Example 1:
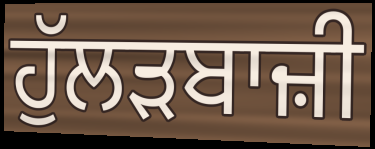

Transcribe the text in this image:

ਹੁੱਲੜਬਾਜ਼ੀ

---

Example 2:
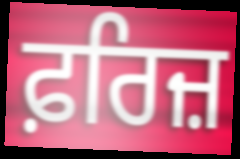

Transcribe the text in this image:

ਫ਼ਰਿਜ਼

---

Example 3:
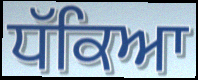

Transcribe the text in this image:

ਧੱਕਿਆ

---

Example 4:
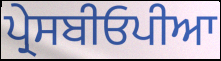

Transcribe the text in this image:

ਪ੍ਰੇਸਬੀਓਪੀਆ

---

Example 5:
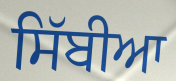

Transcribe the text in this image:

ਸਿੱਬੀਆ